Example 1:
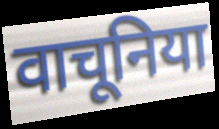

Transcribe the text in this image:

वाचूनिया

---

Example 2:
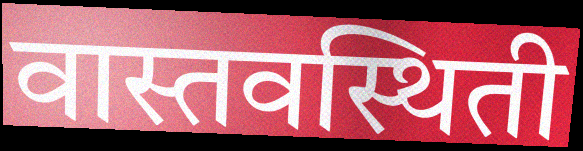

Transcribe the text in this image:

वास्तवस्थिती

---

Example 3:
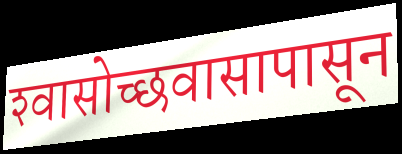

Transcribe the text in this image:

श्वासोच्छवासापासून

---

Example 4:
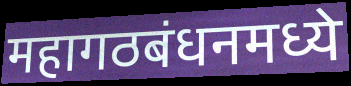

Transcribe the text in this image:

महागठबंधनमध्ये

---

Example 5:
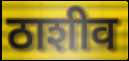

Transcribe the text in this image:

ठाशीव